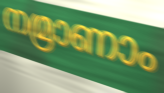
നമ്രാണാം